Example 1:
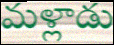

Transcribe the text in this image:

మళ్లాడు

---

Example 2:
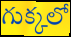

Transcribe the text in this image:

గుక్కలో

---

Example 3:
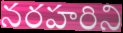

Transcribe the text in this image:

నరహరిని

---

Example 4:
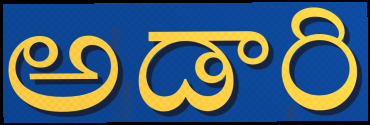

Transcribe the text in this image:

అడారి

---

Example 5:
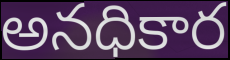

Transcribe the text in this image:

అనధికార